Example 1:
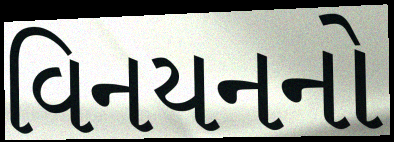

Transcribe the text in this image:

વિનયનનો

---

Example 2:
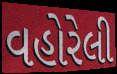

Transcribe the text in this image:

વહોરેલી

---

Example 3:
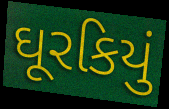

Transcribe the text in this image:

ઘૂરકિયું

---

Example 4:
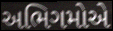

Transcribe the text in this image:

અભિગમોએ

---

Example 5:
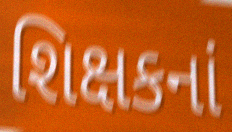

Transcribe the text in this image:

શિક્ષકનાં